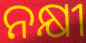
ନକ୍ଷୀ